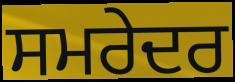
ਸਮਰੇਦਰ